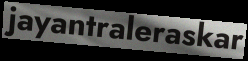
jayantraleraskar